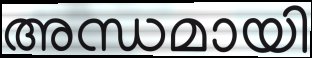
അന്ധമായി